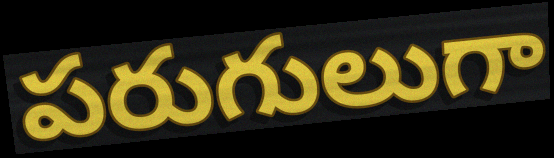
పరుగులుగా